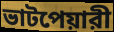
ভাটপেয়ারী